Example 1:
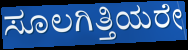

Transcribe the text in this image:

ಸೂಲಗಿತ್ತಿಯರೇ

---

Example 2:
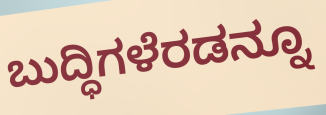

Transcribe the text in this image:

ಬುದ್ಧಿಗಳೆರಡನ್ನೂ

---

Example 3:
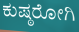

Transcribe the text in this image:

ಕುಷ್ಠರೋಗಿ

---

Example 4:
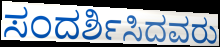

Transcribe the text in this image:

ಸಂದರ್ಶಿಸಿದವರು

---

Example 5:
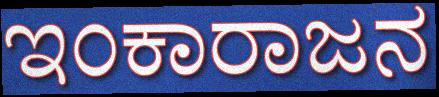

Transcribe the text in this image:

ಇಂಕಾರಾಜನ